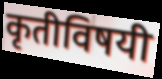
कृतीविषयी